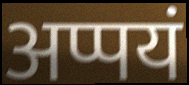
अप्पयं